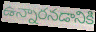
ఉన్నారనడానికి